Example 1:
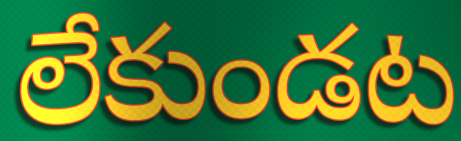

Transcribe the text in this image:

లేకుండట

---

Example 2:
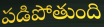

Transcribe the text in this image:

పడిపోతుంది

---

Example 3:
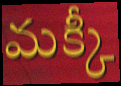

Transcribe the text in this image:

మక్కీ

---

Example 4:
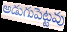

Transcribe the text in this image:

అడుగుపెట్టవు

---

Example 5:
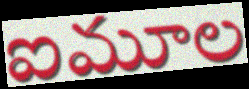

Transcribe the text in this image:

ఐమూల